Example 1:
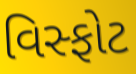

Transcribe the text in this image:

વિસ્ફોટ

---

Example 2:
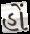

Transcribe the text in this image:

હોં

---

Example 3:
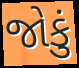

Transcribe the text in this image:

જોકું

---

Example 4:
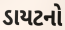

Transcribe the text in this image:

ડાયટનો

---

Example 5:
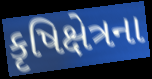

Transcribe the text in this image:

કૃષિક્ષેત્રના